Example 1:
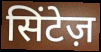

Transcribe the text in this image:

सिंटेज़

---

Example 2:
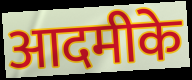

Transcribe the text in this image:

आदमीके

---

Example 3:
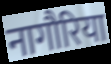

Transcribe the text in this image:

नागौरिया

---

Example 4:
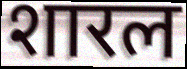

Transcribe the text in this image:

शारल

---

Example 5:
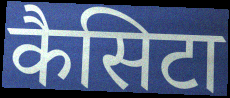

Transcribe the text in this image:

कैसिटा